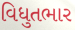
વિધુતભાર